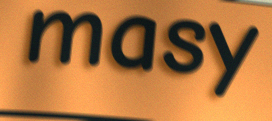
masy